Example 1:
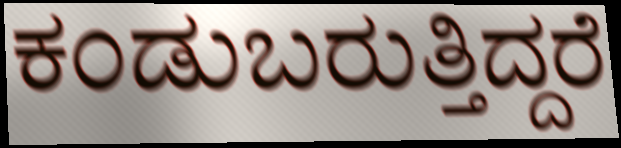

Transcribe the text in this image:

ಕಂಡುಬರುತ್ತಿದ್ದರೆ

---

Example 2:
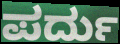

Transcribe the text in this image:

ಪರ್ದು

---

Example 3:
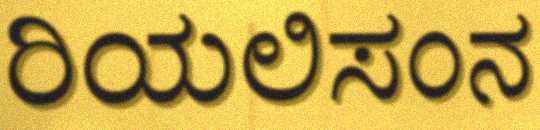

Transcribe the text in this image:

ರಿಯಲಿಸಂನ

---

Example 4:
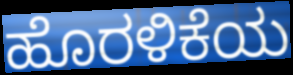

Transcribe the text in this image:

ಹೊರಳಿಕೆಯ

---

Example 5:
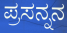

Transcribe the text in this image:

ಪ್ರಸನ್ನನ